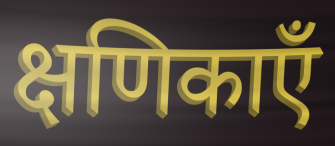
क्षणिकाएँ